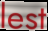
lest